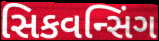
સિકવન્સિંગ